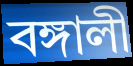
বঙ্গালী